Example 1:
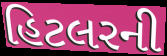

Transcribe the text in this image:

હિટલરની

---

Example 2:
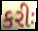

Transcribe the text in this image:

કરીઃ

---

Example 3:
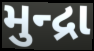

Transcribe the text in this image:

મુન્દ્રા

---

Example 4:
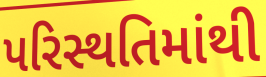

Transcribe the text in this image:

પરિસ્થતિમાંથી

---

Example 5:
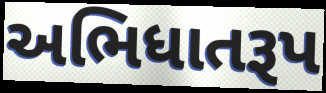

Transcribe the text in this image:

અભિધાતરૂપ